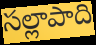
సల్లాపాది